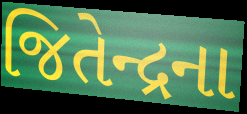
જિતેન્દ્રના